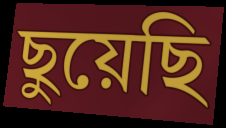
ছুয়েছি